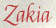
Zakia